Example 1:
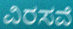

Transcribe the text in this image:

ವಿರಸವೆ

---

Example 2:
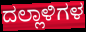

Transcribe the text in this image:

ದಲ್ಲಾಳಿಗಳ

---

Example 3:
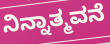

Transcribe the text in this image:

ನಿನ್ನಾತ್ಮವನೆ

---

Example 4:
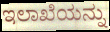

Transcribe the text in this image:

ಇಲಾಖೆಯನ್ನು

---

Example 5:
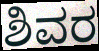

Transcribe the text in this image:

ಶಿವರ